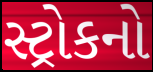
સ્ટ્રોકનો